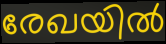
രേഖയിൽ